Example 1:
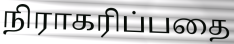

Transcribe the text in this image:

நிராகரிப்பதை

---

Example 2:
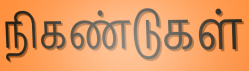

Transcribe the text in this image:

நிகண்டுகள்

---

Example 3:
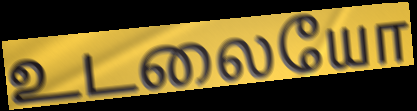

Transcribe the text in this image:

உடலையோ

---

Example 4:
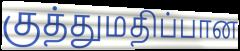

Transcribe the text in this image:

குத்துமதிப்பான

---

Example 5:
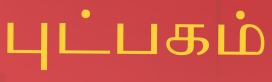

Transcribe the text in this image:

புட்பகம்